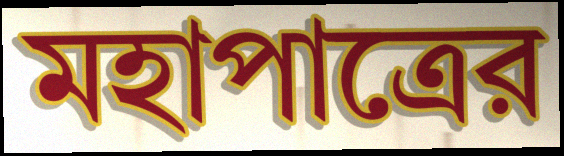
মহাপাত্রের